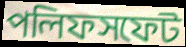
পলিফসফেট